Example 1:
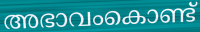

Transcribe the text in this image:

അഭാവംകൊണ്ട്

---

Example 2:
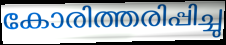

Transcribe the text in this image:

കോരിത്തരിപ്പിച്ചു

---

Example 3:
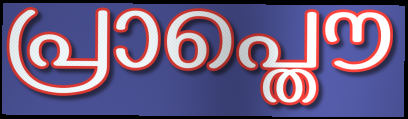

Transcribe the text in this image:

പ്രാപ്തൌ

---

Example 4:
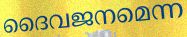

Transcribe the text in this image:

ദൈവജനമെന്ന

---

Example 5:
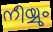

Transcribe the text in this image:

നീയ്യും